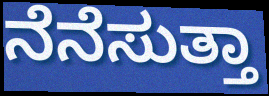
ನೆನೆಸುತ್ತಾ